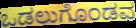
ಒಡಲುಗೊಂಡವ